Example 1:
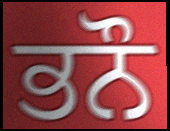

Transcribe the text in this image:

ਭਨੌ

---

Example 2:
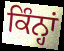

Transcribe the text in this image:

ਕਿੰਨ੍ਹਾਂ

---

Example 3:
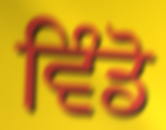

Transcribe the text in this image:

ਵਿੰਡੋ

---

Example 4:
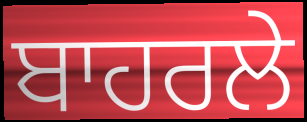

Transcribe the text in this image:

ਬਾਹਰਲੇ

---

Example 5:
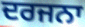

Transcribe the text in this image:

ਦਰਜਨਾ